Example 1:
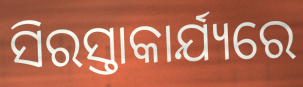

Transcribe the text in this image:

ସିରସ୍ତାକାର୍ଯ୍ୟରେ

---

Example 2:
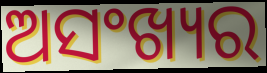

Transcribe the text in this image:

ଅସଂଖ୍ୟର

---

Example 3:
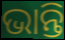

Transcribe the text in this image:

ଭାନ୍ତି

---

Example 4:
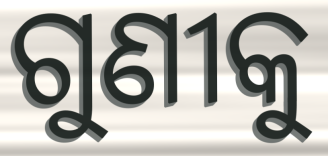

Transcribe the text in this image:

ଗୁଣୀକୁ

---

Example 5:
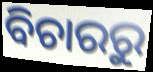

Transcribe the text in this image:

ବିଚାରରୁ